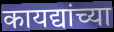
कायद्यांच्या